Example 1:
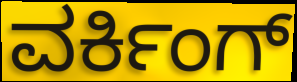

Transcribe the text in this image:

ವರ್ಕಿಂಗ್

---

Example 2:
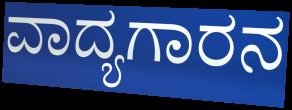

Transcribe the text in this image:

ವಾದ್ಯಗಾರನ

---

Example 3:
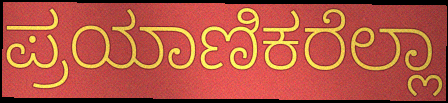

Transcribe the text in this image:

ಪ್ರಯಾಣಿಕರೆಲ್ಲಾ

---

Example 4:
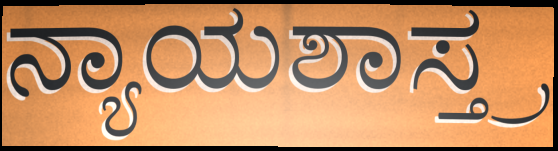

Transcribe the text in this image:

ನ್ಯಾಯಶಾಸ್ತ್ರ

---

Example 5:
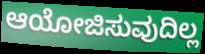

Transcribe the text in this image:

ಆಯೋಜಿಸುವುದಿಲ್ಲ